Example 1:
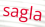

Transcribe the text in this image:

sagla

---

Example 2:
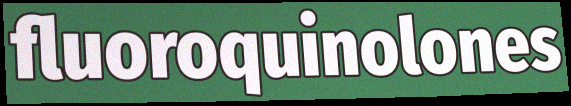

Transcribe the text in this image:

fluoroquinolones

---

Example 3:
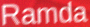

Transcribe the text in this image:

Ramda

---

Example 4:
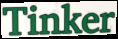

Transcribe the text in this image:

Tinker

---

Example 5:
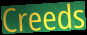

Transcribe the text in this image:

Creeds